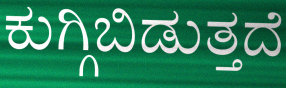
ಕುಗ್ಗಿಬಿಡುತ್ತದೆ